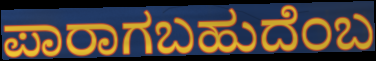
ಪಾರಾಗಬಹುದೆಂಬ